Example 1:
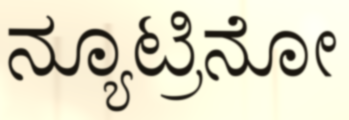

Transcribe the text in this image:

ನ್ಯೂಟ್ರಿನೋ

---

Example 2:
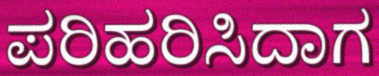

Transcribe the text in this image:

ಪರಿಹರಿಸಿದಾಗ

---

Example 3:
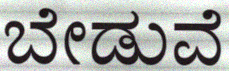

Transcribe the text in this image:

ಬೇಡುವೆ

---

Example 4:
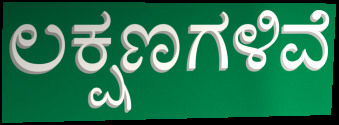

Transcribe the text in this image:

ಲಕ್ಷಣಗಳಿವೆ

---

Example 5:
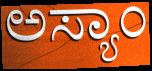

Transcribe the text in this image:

ಅಸ್ಯಾಂ